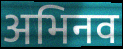
अभिनव